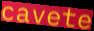
cavete